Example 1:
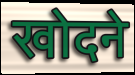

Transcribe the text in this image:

खोदने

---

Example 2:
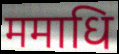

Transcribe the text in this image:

ममाधि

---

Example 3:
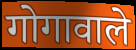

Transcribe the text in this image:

गोगावाले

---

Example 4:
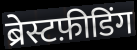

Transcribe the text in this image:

ब्रेस्टफ़ीडिंग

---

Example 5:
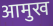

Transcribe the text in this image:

आमुख